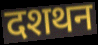
दशथन